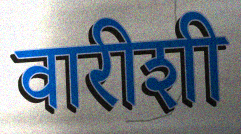
वारीशी